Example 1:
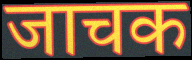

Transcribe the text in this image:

जाचक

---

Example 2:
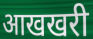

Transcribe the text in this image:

आखखरी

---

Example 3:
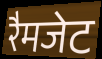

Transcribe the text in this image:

रैमजेट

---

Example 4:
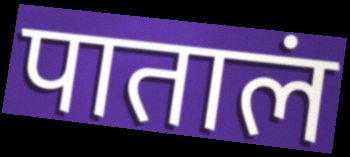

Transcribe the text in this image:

पातालं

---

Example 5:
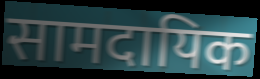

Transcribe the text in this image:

सामदायिक